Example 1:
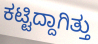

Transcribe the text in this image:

ಕಟ್ಟಿದ್ದಾಗಿತ್ತು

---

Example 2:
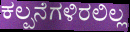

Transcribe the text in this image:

ಕಲ್ಪನೆಗಳಿರಲಿಲ್ಲ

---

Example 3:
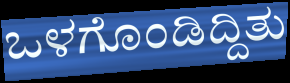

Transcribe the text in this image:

ಒಳಗೊಂಡಿದ್ದಿತು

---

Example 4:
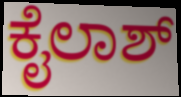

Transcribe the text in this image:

ಕೈಲಾಶ್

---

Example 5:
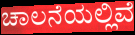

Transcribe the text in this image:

ಚಾಲನೆಯಲ್ಲಿವೆ